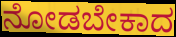
ನೋಡಬೇಕಾದ